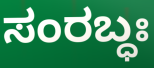
ಸಂರಬ್ಧಃ